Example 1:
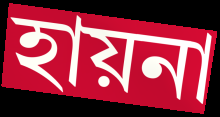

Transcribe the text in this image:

হায়না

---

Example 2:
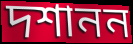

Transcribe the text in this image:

দশানন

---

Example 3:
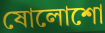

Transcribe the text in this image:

ষোলোশো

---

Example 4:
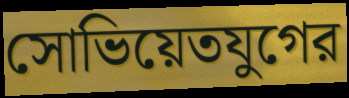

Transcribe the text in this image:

সোভিয়েতযুগের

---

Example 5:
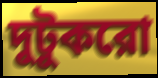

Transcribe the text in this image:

দুটুকরো